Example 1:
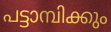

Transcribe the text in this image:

പട്ടാമ്പിക്കും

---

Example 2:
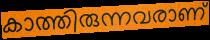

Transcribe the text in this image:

കാത്തിരുന്നവരാണ്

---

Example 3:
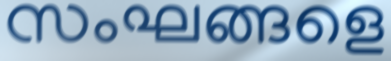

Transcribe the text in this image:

സംഘങ്ങളെ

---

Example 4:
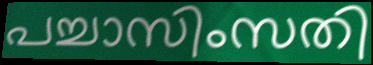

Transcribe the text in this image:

പച്ചാസിംസതി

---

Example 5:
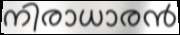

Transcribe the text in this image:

നിരാധാരൻ